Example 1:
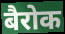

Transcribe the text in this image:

बैरोक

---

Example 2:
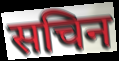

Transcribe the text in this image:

सचिन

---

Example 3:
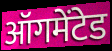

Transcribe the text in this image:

ऑगमेंटेड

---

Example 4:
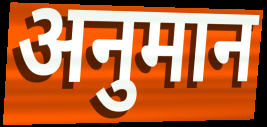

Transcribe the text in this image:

अनुमान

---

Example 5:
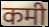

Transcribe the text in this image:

कमी